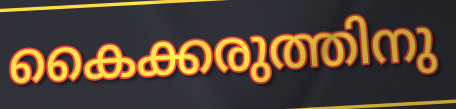
കൈക്കരുത്തിനു